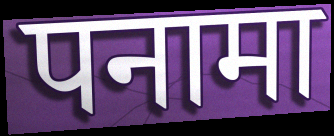
पनामा